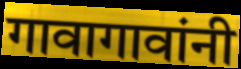
गावागावांनी